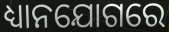
ଧ୍ୟାନଯୋଗରେ